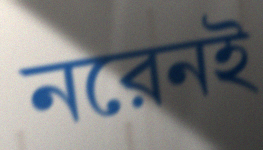
নরেনই